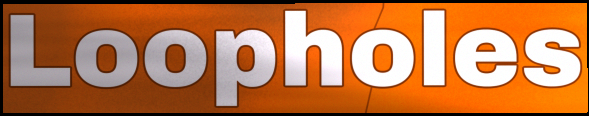
Loopholes